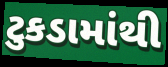
ટુકડામાંથી